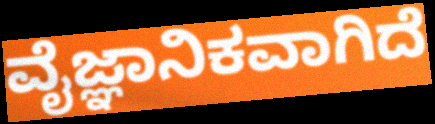
ವೈಜ್ಞಾನಿಕವಾಗಿದೆ